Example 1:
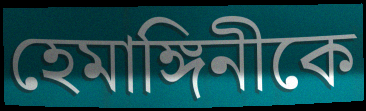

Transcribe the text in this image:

হেমাঙ্গিনীকে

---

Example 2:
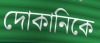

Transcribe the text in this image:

দোকানিকে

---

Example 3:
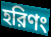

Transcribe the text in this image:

হরিণং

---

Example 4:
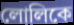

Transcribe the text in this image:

লোলিকে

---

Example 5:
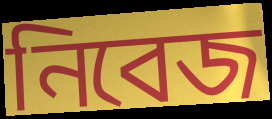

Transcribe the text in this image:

নিবেজ